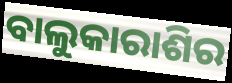
ବାଲୁକାରାଶିର